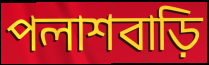
পলাশবাড়ি